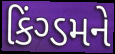
કિંગ્ડમને